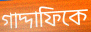
গাদ্দাফিকে